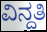
ವಿನ್ದತಿ